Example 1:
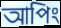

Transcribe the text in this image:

আপিং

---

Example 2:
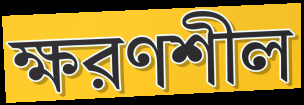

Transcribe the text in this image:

ক্ষরণশীল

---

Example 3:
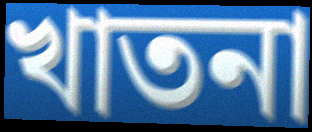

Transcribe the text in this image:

খাতনা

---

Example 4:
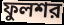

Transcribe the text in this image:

ফুলশর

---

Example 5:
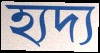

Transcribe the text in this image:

হ্যদ্য